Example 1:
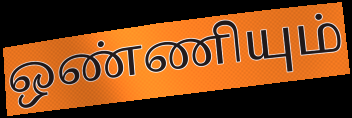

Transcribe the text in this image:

ஒண்ணியும்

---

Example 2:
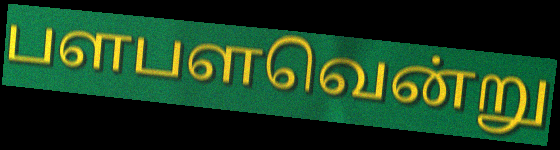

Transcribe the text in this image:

பளபளவென்று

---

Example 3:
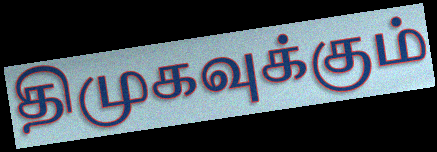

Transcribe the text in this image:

திமுகவுக்கும்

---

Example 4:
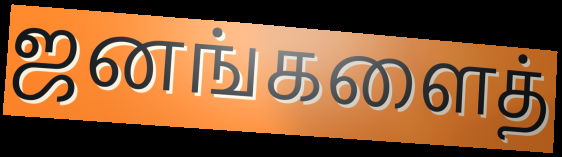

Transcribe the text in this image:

ஜனங்களைத்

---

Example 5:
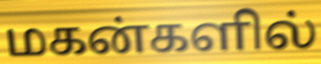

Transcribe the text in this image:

மகன்களில்